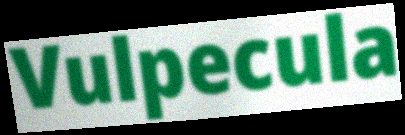
Vulpecula